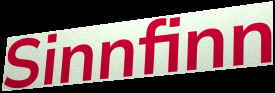
Sinnfinn